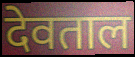
देवताल